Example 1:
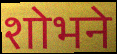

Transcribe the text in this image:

शोभने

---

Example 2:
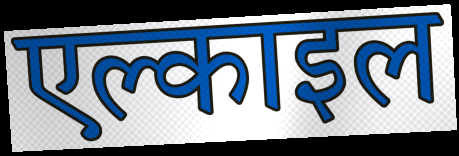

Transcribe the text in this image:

एल्काइल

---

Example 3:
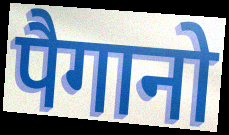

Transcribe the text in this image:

पैगानो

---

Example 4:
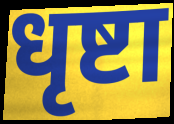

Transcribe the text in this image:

धृष्टा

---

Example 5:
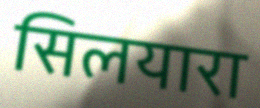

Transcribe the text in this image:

सिलयारा